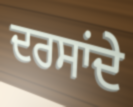
ਦਰਸਾਂਦੇ